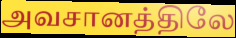
அவசானத்திலே